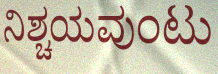
ನಿಶ್ಚಯವುಂಟು